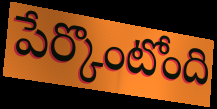
పేర్కొంటోంది